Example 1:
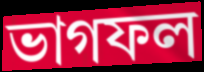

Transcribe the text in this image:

ভাগফল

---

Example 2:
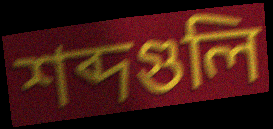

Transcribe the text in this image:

শব্দগুলি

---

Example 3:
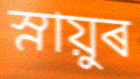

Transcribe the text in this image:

স্নায়ুৰ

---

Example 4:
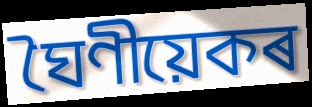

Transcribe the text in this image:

ঘৈণীয়েকৰ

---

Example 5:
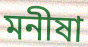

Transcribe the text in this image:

মনীষা